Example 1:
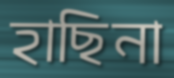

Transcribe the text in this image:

হাছিনা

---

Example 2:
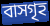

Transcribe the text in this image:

বাসগৃহ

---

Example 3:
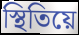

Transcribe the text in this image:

স্থিতিয়ে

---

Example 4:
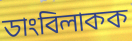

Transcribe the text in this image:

ডাংবিলাকক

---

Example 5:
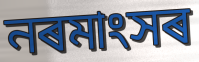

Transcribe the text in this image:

নৰমাংসৰ